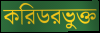
করিডরভুক্ত